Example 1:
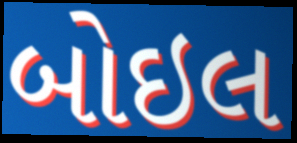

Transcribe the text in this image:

બોઇલ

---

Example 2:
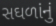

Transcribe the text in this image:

સઘળાંનું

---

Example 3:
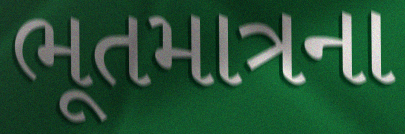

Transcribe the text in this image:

ભૂતમાત્રના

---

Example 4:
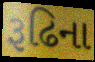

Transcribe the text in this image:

રૂઢિના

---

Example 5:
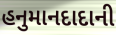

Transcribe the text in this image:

હનુમાનદાદાની